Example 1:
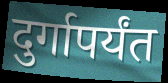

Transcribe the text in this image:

दुर्गापर्यंत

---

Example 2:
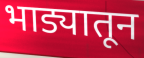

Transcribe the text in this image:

भाड्यातून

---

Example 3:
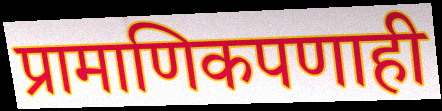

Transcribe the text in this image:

प्रामाणिकपणाही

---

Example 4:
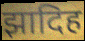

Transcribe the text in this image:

झादिह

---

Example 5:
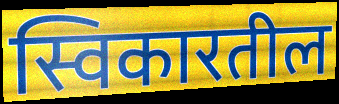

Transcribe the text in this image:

स्विकारतील